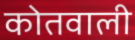
कोतवाली